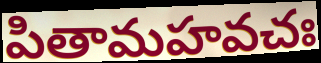
పితామహవచః